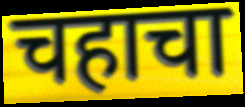
चहाचा